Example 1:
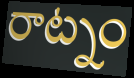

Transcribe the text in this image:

రాట్నం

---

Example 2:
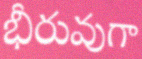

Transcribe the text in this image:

భీరువుగా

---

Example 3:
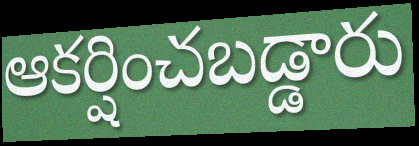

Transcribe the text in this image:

ఆకర్షించబడ్డారు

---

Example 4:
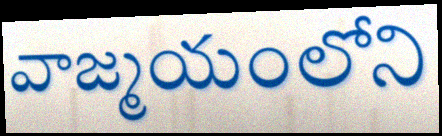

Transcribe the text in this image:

వాజ్మయంలోని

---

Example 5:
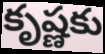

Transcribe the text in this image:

కృష్ణకు